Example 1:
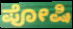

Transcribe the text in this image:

ಪೋಷಿ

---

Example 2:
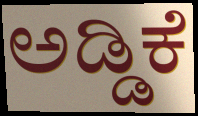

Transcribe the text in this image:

ಅಡ್ಡಿಕೆ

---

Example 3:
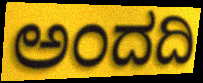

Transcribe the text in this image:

ಅಂದದಿ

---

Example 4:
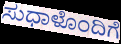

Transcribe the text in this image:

ಸುಧಾಳೊಂದಿಗೆ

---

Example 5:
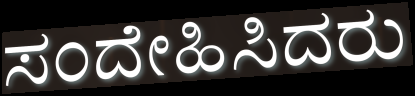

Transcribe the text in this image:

ಸಂದೇಹಿಸಿದರು